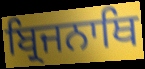
ਬ੍ਰਿਜਨਾਥਿ